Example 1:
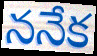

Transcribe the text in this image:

ననేక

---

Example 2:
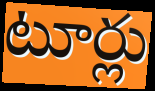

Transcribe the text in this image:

టూర్లు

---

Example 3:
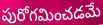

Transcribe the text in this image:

పురోగమించడమే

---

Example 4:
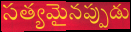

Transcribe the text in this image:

సత్యమైనప్పుడు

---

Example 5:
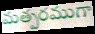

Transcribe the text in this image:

మత్పరముగా